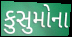
કુસુમોના